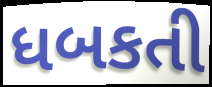
ધબકતી